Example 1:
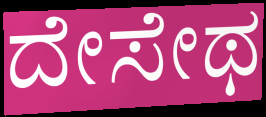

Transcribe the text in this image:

ದೇಸೇಥ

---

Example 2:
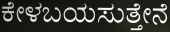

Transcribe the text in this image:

ಕೇಳಬಯಸುತ್ತೇನೆ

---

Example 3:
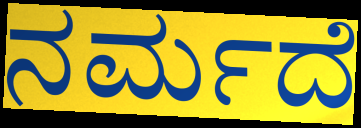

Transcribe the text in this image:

ನರ್ಮದೆ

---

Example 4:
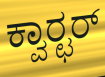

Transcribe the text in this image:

ಕ್ವಾರ‍್ಟರ್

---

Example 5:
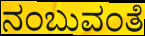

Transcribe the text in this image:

ನಂಬುವಂತೆ